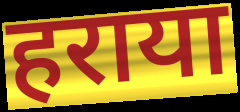
हराया